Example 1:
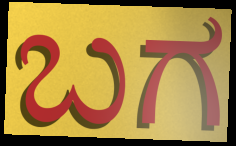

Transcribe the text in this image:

ಬಗ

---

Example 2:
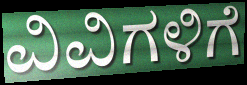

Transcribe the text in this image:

ವಿವಿಗಳಿಗೆ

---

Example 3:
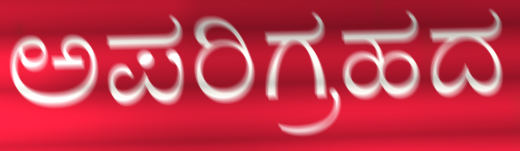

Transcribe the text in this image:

ಅಪರಿಗ್ರಹದ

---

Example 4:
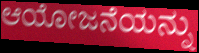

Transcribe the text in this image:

ಆಯೋಜನೆಯನ್ನು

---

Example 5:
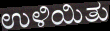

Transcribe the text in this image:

ಉಳಿಯಿತು